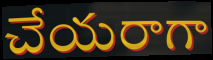
చేయరాగా